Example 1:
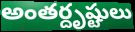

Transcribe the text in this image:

అంతర్దృష్టులు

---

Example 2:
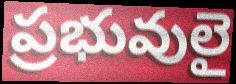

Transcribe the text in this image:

ప్రభువులై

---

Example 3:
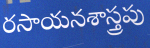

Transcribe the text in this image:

రసాయనశాస్త్రపు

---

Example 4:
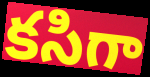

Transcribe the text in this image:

కసిగా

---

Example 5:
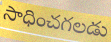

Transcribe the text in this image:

సాధించగలడు